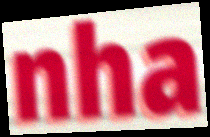
nha